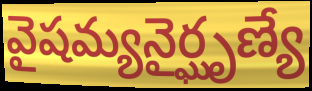
వైషమ్యనైర్ఘృణ్యే